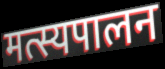
मत्स्यपालन